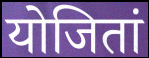
योजितां